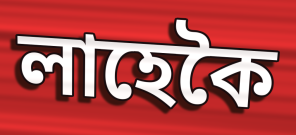
লাহেকৈ